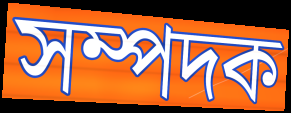
সম্পদক